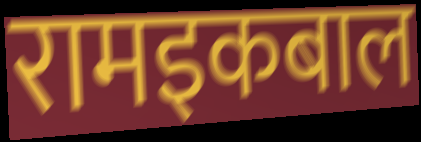
रामइकबाल